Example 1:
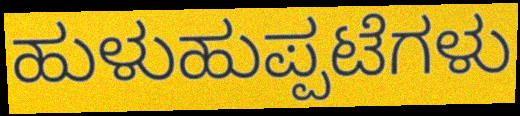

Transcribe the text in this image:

ಹುಳುಹುಪ್ಪಟೆಗಳು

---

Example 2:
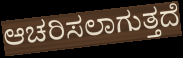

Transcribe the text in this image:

ಆಚರಿಸಲಾಗುತ್ತದೆ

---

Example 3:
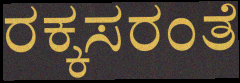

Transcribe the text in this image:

ರಕ್ಕಸರಂತೆ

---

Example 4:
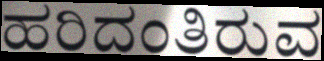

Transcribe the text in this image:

ಹರಿದಂತಿರುವ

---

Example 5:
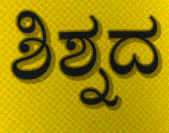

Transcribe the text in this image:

ಶಿಶ್ನದ